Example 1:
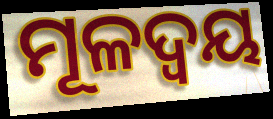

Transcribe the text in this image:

ମୂଳଦ୍ୱୟ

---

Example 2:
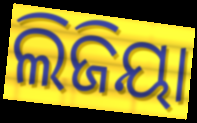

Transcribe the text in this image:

ଲିଜିୟା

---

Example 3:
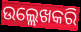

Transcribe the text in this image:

ଉଲ୍ଲେଖକରି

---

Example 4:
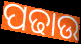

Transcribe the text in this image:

ପଢାଉ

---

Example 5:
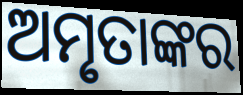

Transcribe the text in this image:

ଅମୃତାଙ୍କର